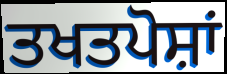
ਤਖਤਪੋਸ਼ਾਂ